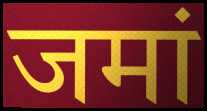
जमां